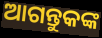
ଆଗନ୍ତୁକଙ୍କ